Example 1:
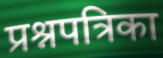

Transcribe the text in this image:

प्रश्नपत्रिका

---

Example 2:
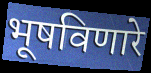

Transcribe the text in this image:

भूषविणारे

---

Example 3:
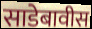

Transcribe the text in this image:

साडेबावीस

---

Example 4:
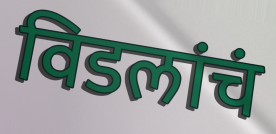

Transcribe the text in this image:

विडलांचं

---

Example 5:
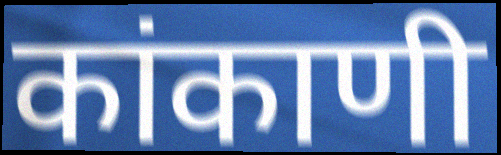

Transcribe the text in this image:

कांकाणी